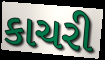
કાચરી